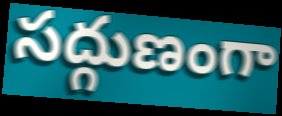
సద్గుణంగా